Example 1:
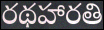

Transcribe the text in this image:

రథహారతి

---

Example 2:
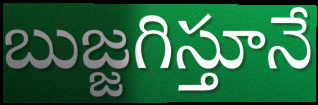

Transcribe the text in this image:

బుజ్జగిస్తూనే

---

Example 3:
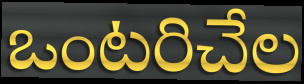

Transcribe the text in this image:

ఒంటరిచేల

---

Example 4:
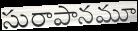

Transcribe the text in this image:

సురాపానమూ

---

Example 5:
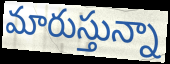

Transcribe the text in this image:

మారుస్తున్నా